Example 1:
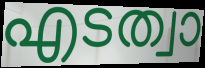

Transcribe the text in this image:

എടത്വാ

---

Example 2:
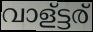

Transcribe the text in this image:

വാള്ട്ടര്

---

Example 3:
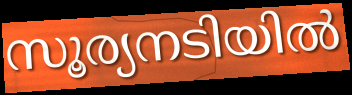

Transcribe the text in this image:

സൂര്യനടിയിൽ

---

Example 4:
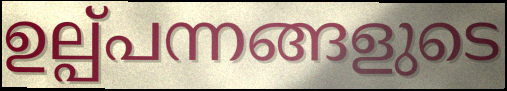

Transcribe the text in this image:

ഉല്പ്പന്നങ്ങളുടെ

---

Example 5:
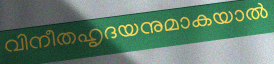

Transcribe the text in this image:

വിനീതഹൃദയനുമാകയാൽ